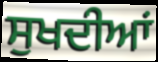
ਸੁਖਦੀਆਂ